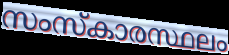
സംസ്കാരസ്ഥലം